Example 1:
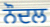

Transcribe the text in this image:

ਨੌਦਲ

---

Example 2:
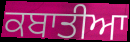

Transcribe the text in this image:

ਕਬਾਤੀਆ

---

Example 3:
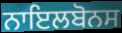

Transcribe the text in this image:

ਨਾਇਲਬੋਨਸ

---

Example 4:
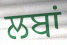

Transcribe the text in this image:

ਲਬਾਂ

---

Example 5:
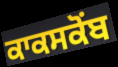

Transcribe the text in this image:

ਕਾਕਸਕੋਂਬ